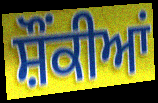
ਸ਼ੌਂਕੀਆਂ